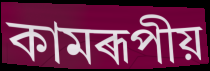
কামৰূপীয়